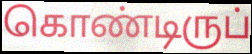
கொண்டிருப்